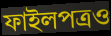
ফাইলপত্রও